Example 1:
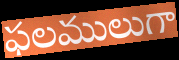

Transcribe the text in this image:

ఫలములుగా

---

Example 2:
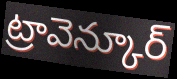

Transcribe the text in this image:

ట్రావెన్కూర్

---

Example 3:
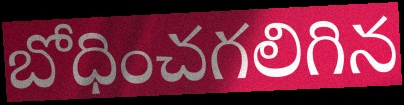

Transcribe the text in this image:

బోధించగలిగిన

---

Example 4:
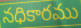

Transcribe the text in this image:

నధికారము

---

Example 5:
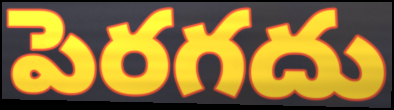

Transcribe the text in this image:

పెరగదు